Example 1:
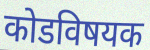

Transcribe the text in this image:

कोडविषयक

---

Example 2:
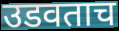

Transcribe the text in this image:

उडवताच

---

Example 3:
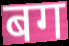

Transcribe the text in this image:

बग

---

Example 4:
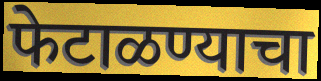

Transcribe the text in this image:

फेटाळण्याचा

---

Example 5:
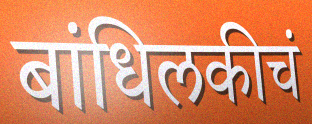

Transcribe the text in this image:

बांधिलकीचं